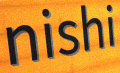
nishi